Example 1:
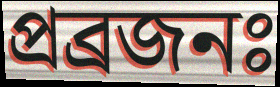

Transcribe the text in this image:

প্ৰব্ৰজনঃ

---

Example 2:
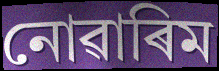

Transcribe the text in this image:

নোৱাৰিম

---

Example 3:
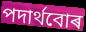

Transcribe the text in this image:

পদাৰ্থবোৰ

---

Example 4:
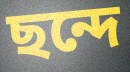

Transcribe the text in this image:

ছন্দে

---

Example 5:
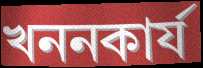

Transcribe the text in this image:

খননকাৰ্য